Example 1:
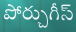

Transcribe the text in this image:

పోర్చుగీస్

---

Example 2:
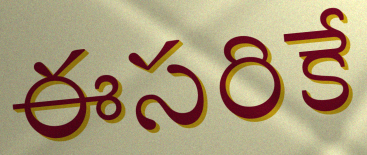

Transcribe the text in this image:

ఈసరికే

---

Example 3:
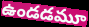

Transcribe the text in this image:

ఉండడమూ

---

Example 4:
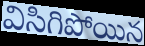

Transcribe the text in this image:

విసిగిపోయిన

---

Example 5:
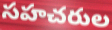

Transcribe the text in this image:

సహచరుల